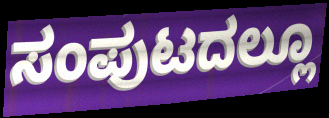
ಸಂಪುಟದಲ್ಲೂ